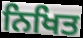
ਨਿਖਿਤ